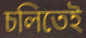
চলিতেই